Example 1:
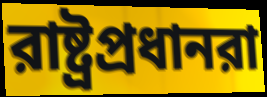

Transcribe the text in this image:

রাষ্ট্রপ্রধানরা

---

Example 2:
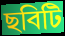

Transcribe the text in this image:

ছবিটি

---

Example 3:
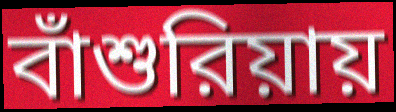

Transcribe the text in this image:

বাঁশুরিয়ায়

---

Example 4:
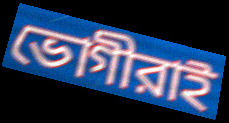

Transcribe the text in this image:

ভোগীরাই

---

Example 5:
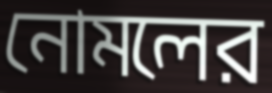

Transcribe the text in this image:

নোমলের